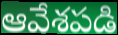
ఆవేశపడి